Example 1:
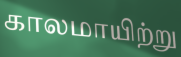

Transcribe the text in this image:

காலமாயிற்று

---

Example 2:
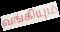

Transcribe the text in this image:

வங்கியும்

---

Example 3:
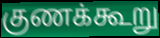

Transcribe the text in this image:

குணக்கூறு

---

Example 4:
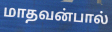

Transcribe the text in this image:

மாதவன்பால்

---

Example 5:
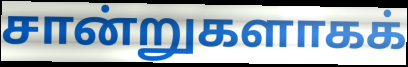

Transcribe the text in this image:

சான்றுகளாகக்